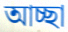
আচ্ছা